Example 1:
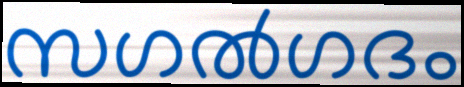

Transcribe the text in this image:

സഗൽഗദം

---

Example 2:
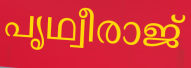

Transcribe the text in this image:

പൃഥ്വീരാജ്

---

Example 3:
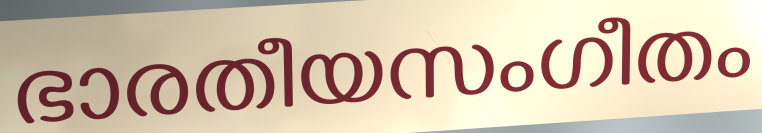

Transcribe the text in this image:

ഭാരതീയസംഗീതം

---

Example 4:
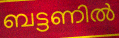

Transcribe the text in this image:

ബട്ടണിൽ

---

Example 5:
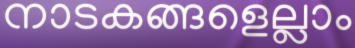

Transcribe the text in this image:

നാടകങ്ങളെല്ലാം